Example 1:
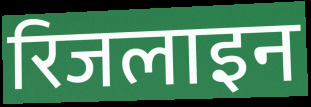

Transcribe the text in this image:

रिजलाइन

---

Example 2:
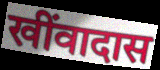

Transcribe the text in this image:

खींवादास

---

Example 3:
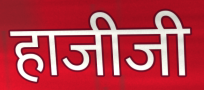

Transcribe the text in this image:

हाजीजी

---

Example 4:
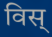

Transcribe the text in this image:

विस्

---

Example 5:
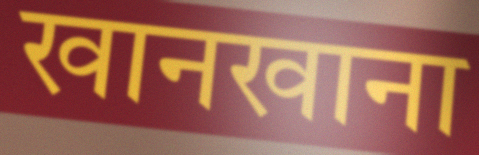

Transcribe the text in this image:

खानखाना